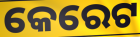
କେରେଟ